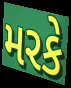
મરકે